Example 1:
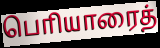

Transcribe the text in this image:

பெரியாரைத்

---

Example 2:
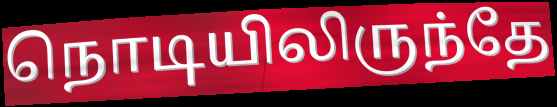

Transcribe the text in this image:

நொடியிலிருந்தே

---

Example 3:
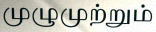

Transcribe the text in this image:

முழுமுற்றும்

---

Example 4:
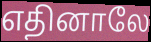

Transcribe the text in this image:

எதினாலே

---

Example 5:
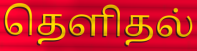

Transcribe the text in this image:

தெளிதல்